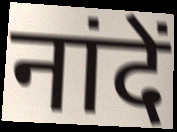
नांदें